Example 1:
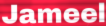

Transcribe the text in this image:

Jameel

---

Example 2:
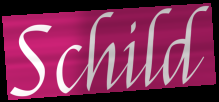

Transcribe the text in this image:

Schild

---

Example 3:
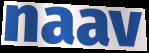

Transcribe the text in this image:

naav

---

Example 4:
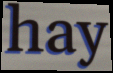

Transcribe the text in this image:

hay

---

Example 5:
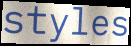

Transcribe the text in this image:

styles